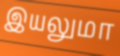
இயலுமா